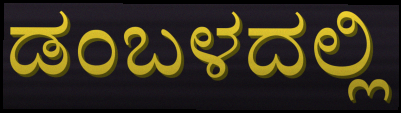
ಡಂಬಳದಲ್ಲಿ